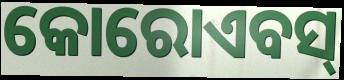
କୋରୋଏବସ୍